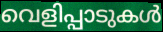
വെളിപ്പാടുകൾ